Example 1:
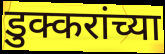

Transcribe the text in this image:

डुक्करांच्या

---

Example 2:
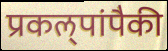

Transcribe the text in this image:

प्रकल्पांपैकी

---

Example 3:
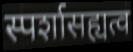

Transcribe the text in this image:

स्पर्शासह्यत्व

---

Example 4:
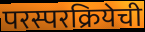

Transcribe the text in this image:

परस्परक्रियेची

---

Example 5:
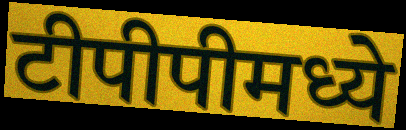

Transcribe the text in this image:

टीपीपीमध्ये